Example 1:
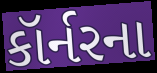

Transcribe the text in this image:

કૉર્નરના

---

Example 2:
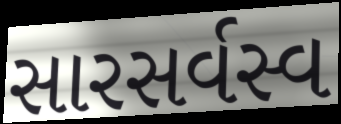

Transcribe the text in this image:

સારસર્વસ્વ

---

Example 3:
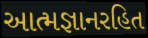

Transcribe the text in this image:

આત્મજ્ઞાનરહિત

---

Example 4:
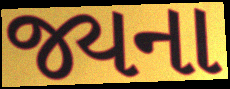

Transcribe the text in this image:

જ્યના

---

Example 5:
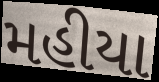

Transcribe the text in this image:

મહીયા